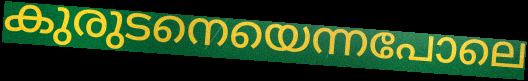
കുരുടനെയെന്നപോലെ